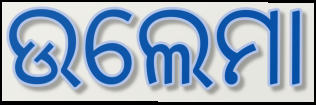
ଉଲେମା